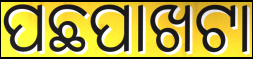
ପଛପାଖଟା